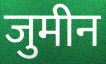
जुमीन